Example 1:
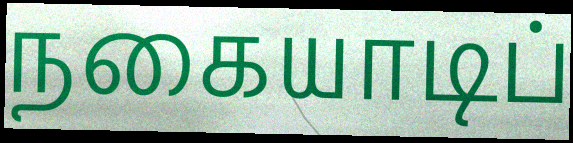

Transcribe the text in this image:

நகையாடிப்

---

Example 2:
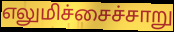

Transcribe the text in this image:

எலுமிச்சைச்சாறு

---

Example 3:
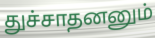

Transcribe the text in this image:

துச்சாதனனும்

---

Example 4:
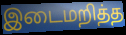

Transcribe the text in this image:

இடைமறித்த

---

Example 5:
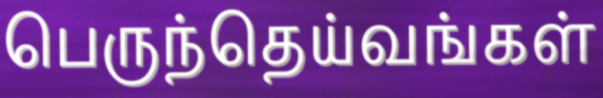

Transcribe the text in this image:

பெருந்தெய்வங்கள்